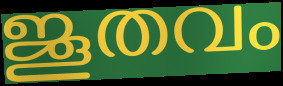
ജൂതവം